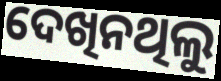
ଦେଖିନଥିଲୁ